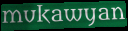
mukawyan